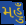
મહુઁ